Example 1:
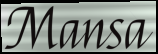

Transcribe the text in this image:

Mansa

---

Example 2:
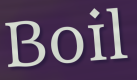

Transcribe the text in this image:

Boil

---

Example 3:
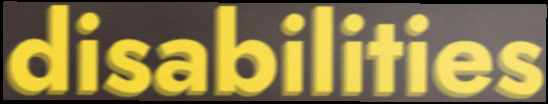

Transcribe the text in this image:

disabilities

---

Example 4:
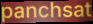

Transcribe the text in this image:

panchsat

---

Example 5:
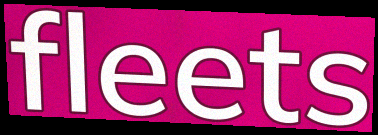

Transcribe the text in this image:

fleets